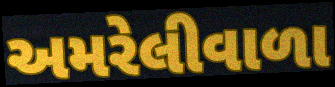
અમરેલીવાળા